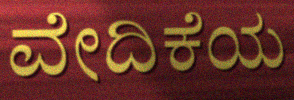
ವೇದಿಕೆಯ